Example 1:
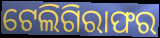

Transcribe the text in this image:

ଟେଲିଗିରାଫର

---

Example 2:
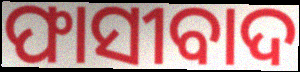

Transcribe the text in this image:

ଫାସୀବାଦ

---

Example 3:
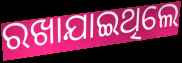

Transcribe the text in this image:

ରଖାଯାଇଥିଲେ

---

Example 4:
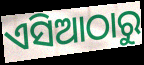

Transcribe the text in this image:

ଏସିଆଠାରୁ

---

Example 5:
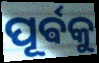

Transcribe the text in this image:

ପୂର୍ଵକୁ